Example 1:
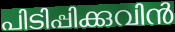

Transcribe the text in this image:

പിടിപ്പിക്കുവിൻ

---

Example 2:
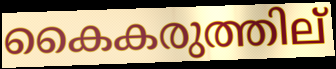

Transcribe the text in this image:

കൈകരുത്തില്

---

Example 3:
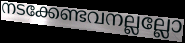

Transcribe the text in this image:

നടക്കേണ്ടവനല്ലല്ലോ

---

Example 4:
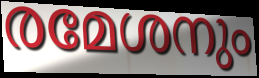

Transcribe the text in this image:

രമേശനും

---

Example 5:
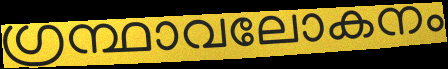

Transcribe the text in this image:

ഗ്രന്ഥാവലോകനം